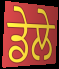
ਡੇਲੇ